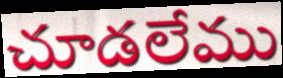
చూడలేము